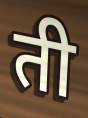
ती